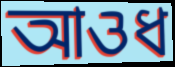
আওধ